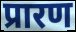
प्रारण